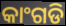
କାଂଗଡି